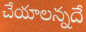
చేయాలన్నదే